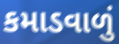
કમાડવાળું